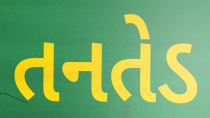
તનતેડ